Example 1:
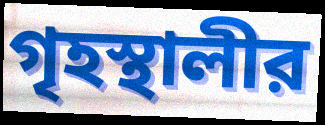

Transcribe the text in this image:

গৃহস্থালীর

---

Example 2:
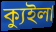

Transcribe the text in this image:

ক্যুইলা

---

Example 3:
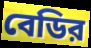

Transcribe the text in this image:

বেডির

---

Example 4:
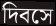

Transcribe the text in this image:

দিবসে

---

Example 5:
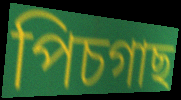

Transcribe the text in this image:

পিচগাছ